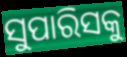
ସୁପାରିସକୁ